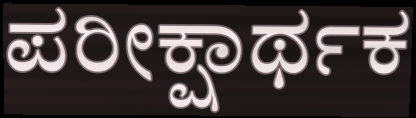
ಪರೀಕ್ಷಾರ್ಥಕ